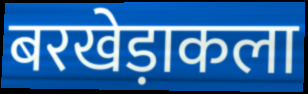
बरखेड़ाकला